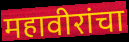
महावीरांचा